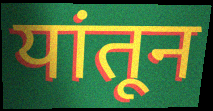
यांतून